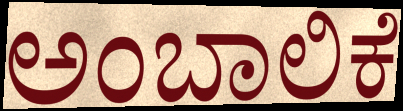
ಅಂಬಾಲಿಕೆ